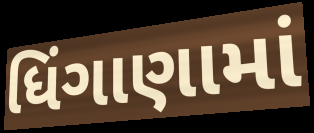
ધિંગાણામાં